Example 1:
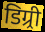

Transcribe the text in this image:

डिग्र्री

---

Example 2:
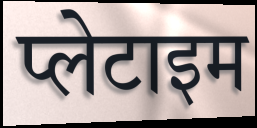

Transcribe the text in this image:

प्लेटाइम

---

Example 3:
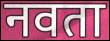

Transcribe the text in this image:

नवता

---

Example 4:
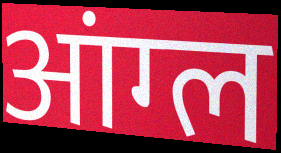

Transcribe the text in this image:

आंग्ल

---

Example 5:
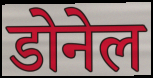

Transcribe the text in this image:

डोनेल